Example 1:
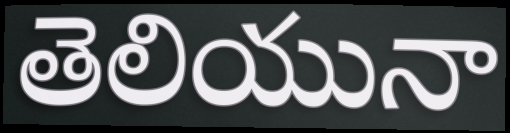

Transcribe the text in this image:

తెలియునా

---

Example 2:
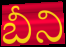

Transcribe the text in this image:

బీని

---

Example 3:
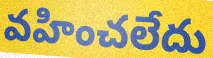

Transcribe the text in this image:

వహించలేదు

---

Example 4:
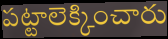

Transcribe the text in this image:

పట్టాలెక్కించారు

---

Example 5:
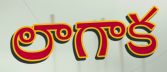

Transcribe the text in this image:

లాగాక